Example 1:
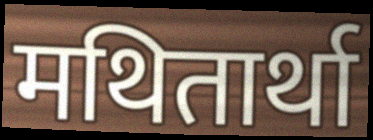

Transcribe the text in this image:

मथितार्था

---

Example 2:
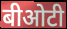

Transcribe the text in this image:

बीओटी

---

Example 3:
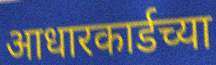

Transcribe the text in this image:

आधारकार्डच्या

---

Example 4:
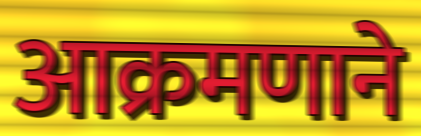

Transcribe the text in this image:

आक्रमणाने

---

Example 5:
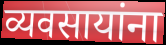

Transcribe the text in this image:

व्यवसायांना